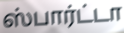
ஸ்பார்ட்டா